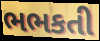
ભભકતી